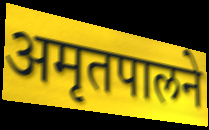
अमृतपालने